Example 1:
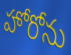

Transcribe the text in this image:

హోరోను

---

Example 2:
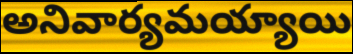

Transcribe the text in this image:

అనివార్యమయ్యాయి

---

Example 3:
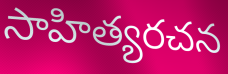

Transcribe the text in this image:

సాహిత్యరచన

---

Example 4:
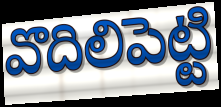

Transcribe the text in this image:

వొదిలిపెట్టి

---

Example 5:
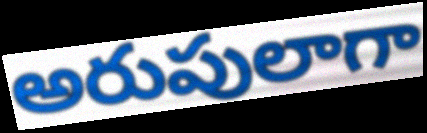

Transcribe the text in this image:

అరుపులాగా